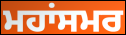
ਮਹਾਂਸਮਰ